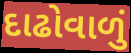
દાઢોવાળું